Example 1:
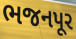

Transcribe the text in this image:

ભજનપૂર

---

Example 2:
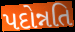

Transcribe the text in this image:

પદોન્નતિ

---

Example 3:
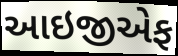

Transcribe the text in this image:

આઇજીએફ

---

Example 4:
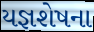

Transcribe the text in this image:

યજ્ઞશેષના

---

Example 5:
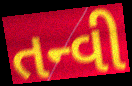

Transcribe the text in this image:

તન્વી